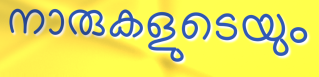
നാരുകളുടെയും